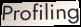
Profiling